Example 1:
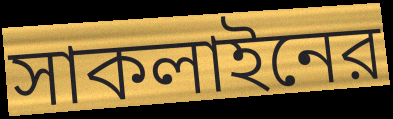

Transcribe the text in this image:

সাকলাইনের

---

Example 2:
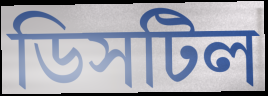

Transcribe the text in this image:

ডিসটিল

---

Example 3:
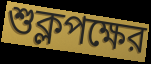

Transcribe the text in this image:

শুক্লপক্ষের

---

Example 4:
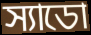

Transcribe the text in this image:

স্যাডো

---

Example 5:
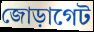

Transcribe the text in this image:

জোড়াগেট